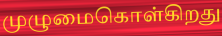
முழுமைகொள்கிறது